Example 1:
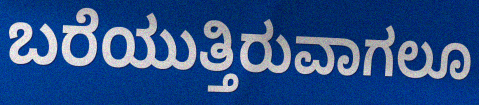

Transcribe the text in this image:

ಬರೆಯುತ್ತಿರುವಾಗಲೂ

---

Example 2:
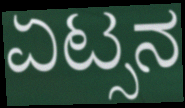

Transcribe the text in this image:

ಏಟ್ಸನ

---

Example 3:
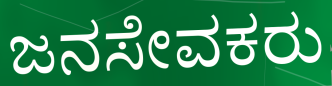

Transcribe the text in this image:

ಜನಸೇವಕರು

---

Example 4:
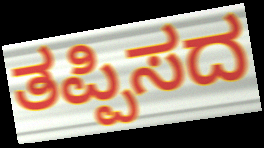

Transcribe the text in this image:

ತಪ್ಪಿಸದ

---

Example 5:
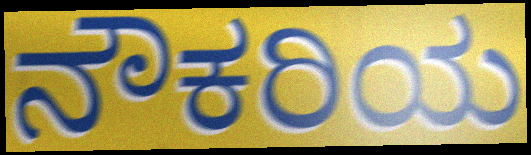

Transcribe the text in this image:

ನೌಕರಿಯ